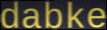
dabke